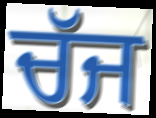
ਚੱਜ